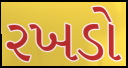
રખડો